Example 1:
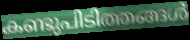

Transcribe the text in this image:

കണ്ടുപിടിത്തങ്ങൾ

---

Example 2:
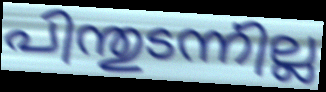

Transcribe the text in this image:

പിന്തുടൎന്നില്ല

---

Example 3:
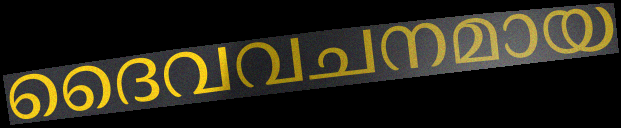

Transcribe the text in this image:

ദൈവവചനമായ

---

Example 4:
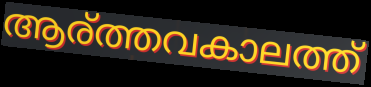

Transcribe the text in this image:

ആര്ത്തവകാലത്ത്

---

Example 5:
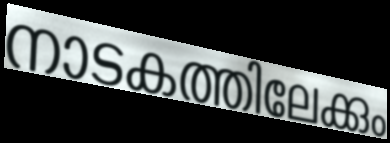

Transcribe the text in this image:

നാടകത്തിലേക്കും